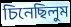
চিনেছিলুম